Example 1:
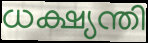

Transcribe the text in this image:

ധക്ഷ്യന്തി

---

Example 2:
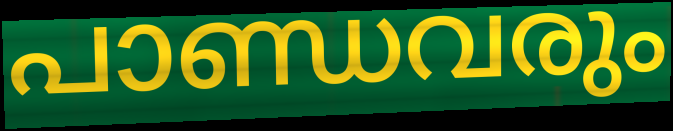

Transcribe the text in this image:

പാണ്ഡവരും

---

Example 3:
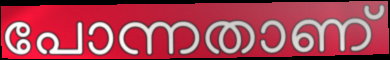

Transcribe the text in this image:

പോന്നതാണ്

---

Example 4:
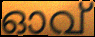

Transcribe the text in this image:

ഓവ്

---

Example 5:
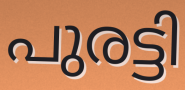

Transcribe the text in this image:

പുരട്ടി